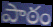
పాఠం